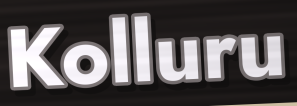
Kolluru